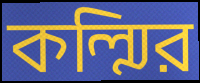
কল্মির